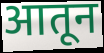
आतून